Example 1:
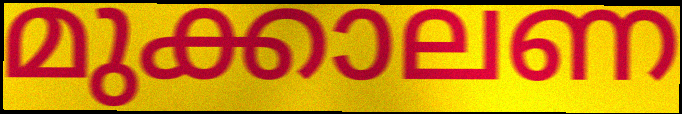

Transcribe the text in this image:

മുക്കാലണ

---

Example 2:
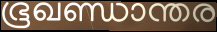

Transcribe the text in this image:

ഭൂഖണ്ഡാന്തര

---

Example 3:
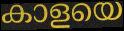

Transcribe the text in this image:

കാളയെ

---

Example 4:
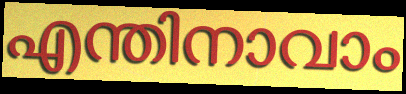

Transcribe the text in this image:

എന്തിനാവാം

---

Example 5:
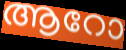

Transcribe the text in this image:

ആറോ